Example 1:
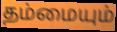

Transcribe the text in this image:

தம்மையும்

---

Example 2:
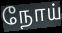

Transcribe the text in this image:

நோய்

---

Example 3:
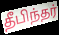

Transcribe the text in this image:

தீபிந்தர்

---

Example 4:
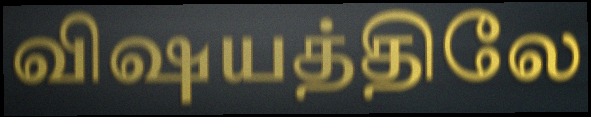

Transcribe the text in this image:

விஷயத்திலே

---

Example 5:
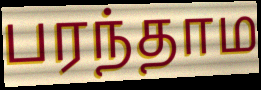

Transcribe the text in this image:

பரந்தாம